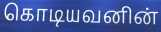
கொடியவனின்